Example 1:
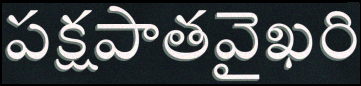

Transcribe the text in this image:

పక్షపాతవైఖరి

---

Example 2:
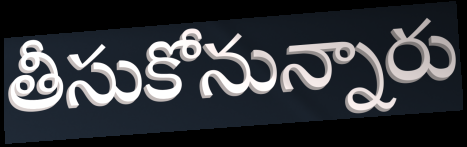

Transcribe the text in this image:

తీసుకోనున్నారు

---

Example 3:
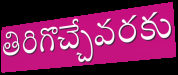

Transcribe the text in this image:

తిరిగొచ్చేవరకు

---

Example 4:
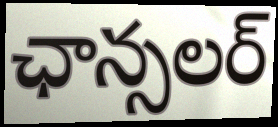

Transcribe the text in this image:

ఛాన్సలర్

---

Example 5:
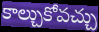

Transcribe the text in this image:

కాల్చుకోవచ్చు